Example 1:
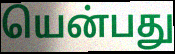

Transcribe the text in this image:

யென்பது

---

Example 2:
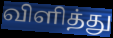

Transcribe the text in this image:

விளித்து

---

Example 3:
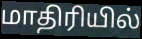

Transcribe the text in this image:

மாதிரியில்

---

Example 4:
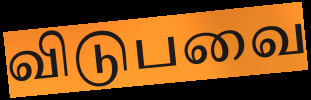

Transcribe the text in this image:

விடுபவை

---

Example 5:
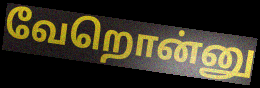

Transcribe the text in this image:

வேறொன்னு